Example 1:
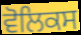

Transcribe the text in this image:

ਵੋਲਿਕਸ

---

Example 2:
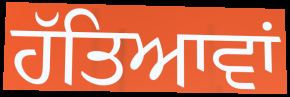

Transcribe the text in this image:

ਹੱਤਿਆਵਾਂ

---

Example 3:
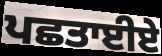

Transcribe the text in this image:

ਪਛਤਾਈਏ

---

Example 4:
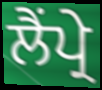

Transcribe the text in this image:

ਲੈਂਪ੍ਰੇ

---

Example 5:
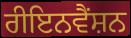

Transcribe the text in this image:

ਰੀਇਨਵੈਂਸ਼ਨ